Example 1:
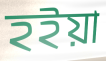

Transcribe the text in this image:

হইয়া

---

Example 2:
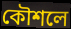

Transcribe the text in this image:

কৌশলে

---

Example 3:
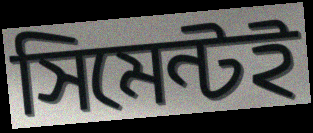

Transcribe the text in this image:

সিমেন্টই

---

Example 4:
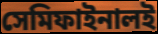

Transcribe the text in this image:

সেমিফাইনালই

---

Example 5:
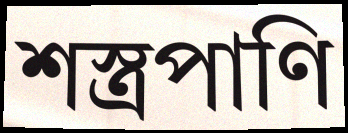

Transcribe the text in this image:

শস্ত্রপাণি